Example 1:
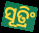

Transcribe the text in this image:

ସୂତ୍ରିଂ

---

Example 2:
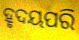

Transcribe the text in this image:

ହୃଦୟପରି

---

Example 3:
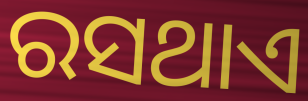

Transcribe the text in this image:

ରସଥାଏ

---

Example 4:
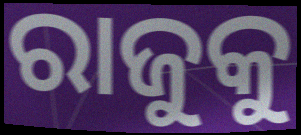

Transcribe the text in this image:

ରାଜୁକୁ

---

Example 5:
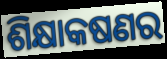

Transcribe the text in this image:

ଶିକ୍ଷାକଷଣର